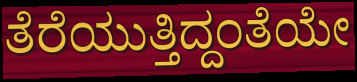
ತೆರೆಯುತ್ತಿದ್ದಂತೆಯೇ